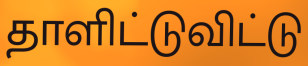
தாளிட்டுவிட்டு